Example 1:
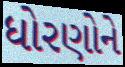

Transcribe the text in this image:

ધોરણોને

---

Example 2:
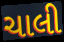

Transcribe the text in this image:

ચાલી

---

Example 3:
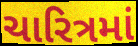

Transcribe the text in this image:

ચારિત્રમાં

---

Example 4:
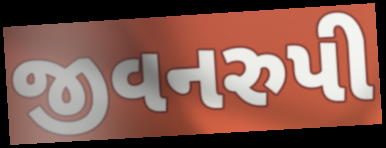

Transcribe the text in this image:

જીવનરુપી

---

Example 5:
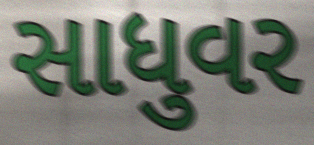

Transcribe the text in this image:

સાધુવર